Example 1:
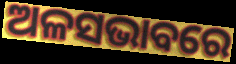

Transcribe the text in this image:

ଅଳସଭାବରେ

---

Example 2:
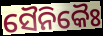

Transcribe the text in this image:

ସୈନିକୈଃ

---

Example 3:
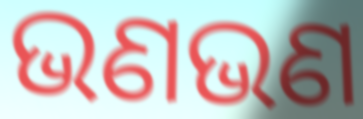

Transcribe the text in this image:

ଭଣଭଣ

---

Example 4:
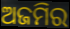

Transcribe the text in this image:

ଅଜମିର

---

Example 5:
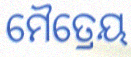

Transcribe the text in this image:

ମୈତ୍ରେୟ